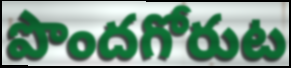
పొందగోరుట